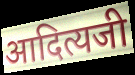
आदित्यजी